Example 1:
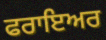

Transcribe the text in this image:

ਫਰਾਇਅਰ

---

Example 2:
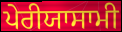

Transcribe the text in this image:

ਪੇਰੀਯਾਸਾਮੀ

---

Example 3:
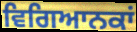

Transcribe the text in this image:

ਵਿਗਿਆਨਕਾਂ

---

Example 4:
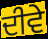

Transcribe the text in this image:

ਦੀਵੇ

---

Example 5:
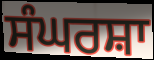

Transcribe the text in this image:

ਸੰਘਰਸ਼ਾ